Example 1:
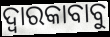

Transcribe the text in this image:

ଦ୍ୱାରକାବାବୁ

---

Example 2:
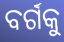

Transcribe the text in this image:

ବର୍ଗକୁ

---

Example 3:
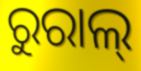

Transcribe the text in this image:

ରୁରାଲ୍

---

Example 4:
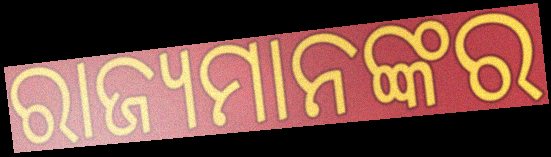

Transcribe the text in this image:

ରାଜ୍ୟମାନଙ୍କର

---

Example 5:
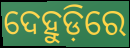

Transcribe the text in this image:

ଦେହୁଡ଼ିରେ